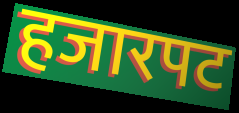
हजारपट